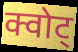
क्वोट्